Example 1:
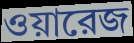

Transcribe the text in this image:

ওয়ারেজ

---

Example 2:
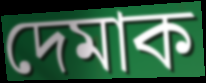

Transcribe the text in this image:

দেমাক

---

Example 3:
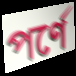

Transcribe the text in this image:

পর্ণে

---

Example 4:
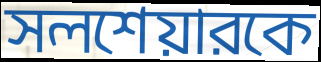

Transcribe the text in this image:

সলশেয়ারকে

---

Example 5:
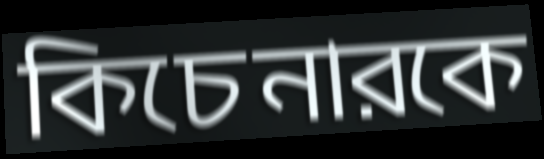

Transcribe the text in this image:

কিচেনারকে